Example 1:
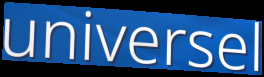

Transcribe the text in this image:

universel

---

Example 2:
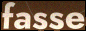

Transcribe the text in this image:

fasse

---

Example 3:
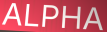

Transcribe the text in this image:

ALPHA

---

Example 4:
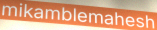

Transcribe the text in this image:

mikamblemahesh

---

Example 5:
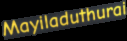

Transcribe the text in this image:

Mayiladuthurai